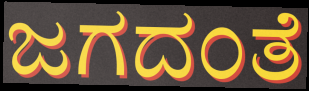
ಜಗದಂತೆ